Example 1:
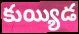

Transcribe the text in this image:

కుయ్యిడ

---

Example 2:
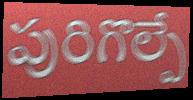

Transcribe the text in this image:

పురిగొల్పే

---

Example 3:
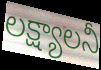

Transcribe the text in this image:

లక్ష్యాలనీ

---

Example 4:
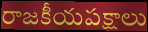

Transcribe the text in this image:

రాజకీయపక్షాలు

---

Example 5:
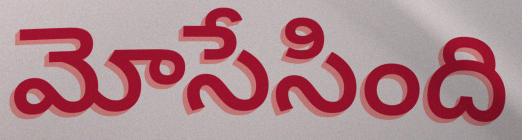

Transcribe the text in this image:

మోసేసింది